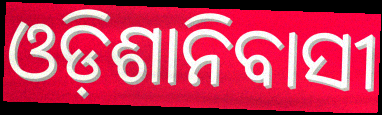
ଓଡ଼ିଶାନିବାସୀ